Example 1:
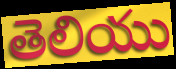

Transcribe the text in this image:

తెలియు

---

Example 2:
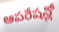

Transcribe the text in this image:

ఆపరేషన్లో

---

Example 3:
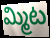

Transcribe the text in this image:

మ్మిట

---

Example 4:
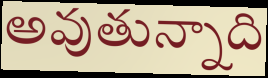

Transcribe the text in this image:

అవుతున్నాది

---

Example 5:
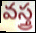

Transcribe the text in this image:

వస్త్ర